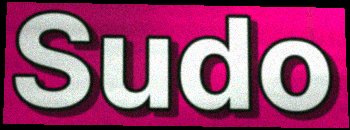
Sudo